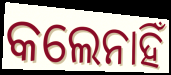
କଲେନାହିଁ